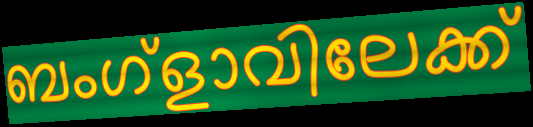
ബംഗ്ളാവിലേക്ക്